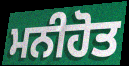
ਮਨੀਹੋਤ